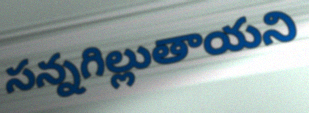
సన్నగిల్లుతాయని